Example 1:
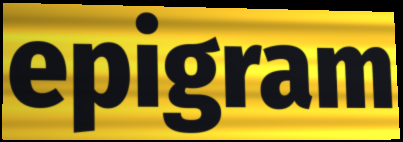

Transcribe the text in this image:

epigram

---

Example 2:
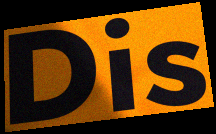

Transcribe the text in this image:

Dis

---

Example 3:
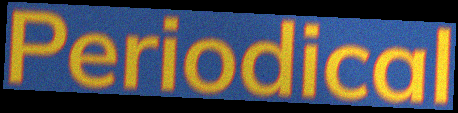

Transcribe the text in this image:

Periodical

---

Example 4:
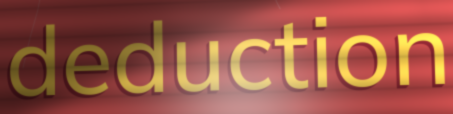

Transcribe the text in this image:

deduction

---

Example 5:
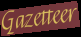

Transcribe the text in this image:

Gazetteer